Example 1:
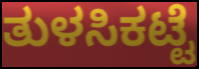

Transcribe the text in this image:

ತುಳಸಿಕಟ್ಟೆ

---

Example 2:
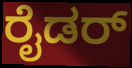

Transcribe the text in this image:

ರೈಡರ್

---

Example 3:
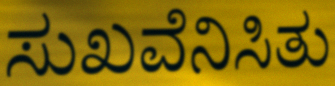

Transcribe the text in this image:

ಸುಖವೆನಿಸಿತು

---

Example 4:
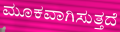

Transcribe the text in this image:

ಮೂಕವಾಗಿಸುತ್ತದೆ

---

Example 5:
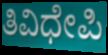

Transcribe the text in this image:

ತಿವಿಧೇಪಿ